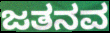
ಜತನವ